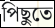
পিছুতে